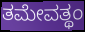
ತಮೇವತ್ಥಂ